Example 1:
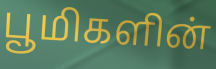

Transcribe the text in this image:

பூமிகளின்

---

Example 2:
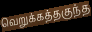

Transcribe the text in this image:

வெறுக்கத்தகுந்த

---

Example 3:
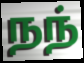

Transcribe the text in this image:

நந்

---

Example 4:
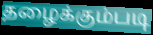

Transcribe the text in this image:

தழைக்கும்படி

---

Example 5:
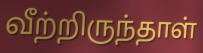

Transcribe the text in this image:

வீற்றிருந்தாள்